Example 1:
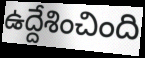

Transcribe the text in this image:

ఉద్దేశించింది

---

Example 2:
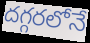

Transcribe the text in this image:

దగ్గరలోనే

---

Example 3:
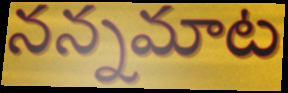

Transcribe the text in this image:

నన్నమాట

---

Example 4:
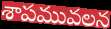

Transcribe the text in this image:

శాపమువలన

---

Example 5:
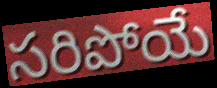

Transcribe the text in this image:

సరిపోయే